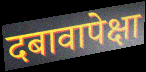
दबावापेक्षा